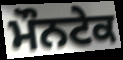
ਮੌਨਟੇਕ